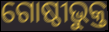
ଗୋଷ୍ଠୀଭୁକ୍ତ